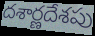
దశార్ణదేశపు